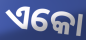
ଏକୋ